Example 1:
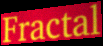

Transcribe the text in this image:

Fractal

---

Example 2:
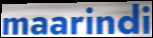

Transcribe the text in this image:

maarindi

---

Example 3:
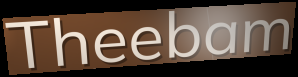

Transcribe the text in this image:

Theebam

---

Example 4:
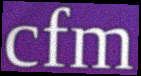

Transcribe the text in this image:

cfm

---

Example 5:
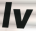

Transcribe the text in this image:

lv